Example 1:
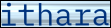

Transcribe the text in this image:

ithara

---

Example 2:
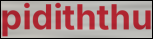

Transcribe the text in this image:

pidiththu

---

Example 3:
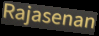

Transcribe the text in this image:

Rajasenan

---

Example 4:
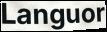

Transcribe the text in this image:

Languor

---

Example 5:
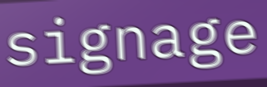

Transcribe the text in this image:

signage